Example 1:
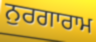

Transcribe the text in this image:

ਨੁਰਗਾਰਾਮ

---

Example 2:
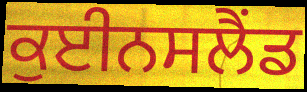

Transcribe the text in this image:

ਕੁਈਨਸਲੈਂਡ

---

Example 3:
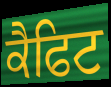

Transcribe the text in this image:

ਕੈਫਿਟ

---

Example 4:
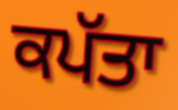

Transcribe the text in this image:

ਕਪੱਤਾ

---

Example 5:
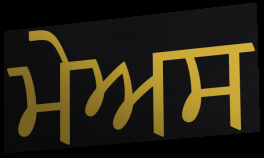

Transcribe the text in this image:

ਮੇਅਸ